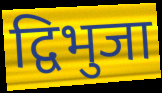
द्विभुजा